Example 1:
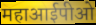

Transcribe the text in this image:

महाआईपीओ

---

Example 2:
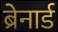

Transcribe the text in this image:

ब्रेनार्ड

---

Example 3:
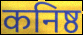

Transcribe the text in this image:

कनिष्ठ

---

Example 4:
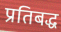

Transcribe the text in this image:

प्रतिबद्ध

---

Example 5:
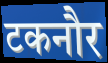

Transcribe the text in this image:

टकनौर